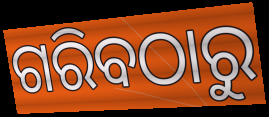
ଗରିବଠାରୁ